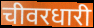
चीवरधारी